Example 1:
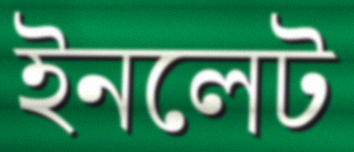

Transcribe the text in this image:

ইনলেট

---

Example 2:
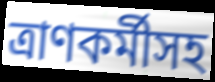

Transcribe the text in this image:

ত্রাণকর্মীসহ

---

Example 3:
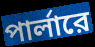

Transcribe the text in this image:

পার্লারে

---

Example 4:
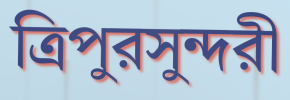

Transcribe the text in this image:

ত্রিপুরসুন্দরী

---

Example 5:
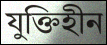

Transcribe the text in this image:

যুক্তিহীন